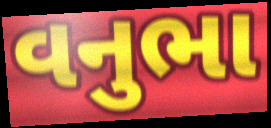
વનુભા